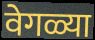
वेगळ्या